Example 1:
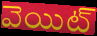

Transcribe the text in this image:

వెయిట్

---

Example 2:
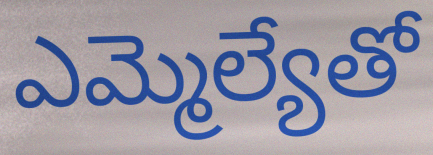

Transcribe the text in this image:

ఎమ్మెల్యేతో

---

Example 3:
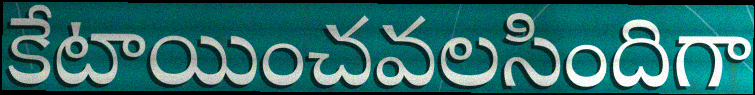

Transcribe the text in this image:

కేటాయించవలసిందిగా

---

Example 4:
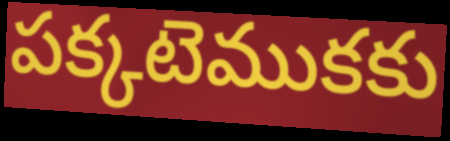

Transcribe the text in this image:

పక్కటెముకకు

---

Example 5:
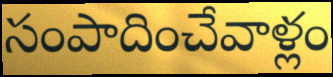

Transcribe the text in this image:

సంపాదించేవాళ్లం